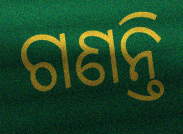
ଗଣନ୍ତି